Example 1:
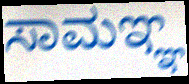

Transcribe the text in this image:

ಸಾಮಞ್ಞ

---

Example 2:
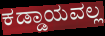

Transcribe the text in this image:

ಕಡ್ಡಾಯವಲ್ಲ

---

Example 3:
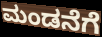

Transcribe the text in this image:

ಮಂಡನೆಗೆ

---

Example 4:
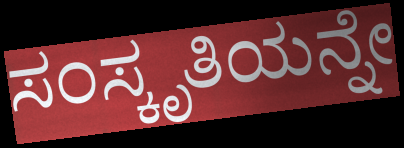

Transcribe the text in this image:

ಸಂಸ್ಕೃತಿಯನ್ನೇ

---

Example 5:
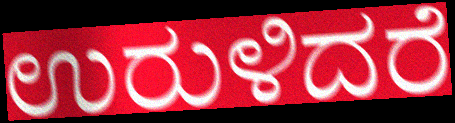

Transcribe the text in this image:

ಉರುಳಿದರೆ